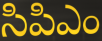
సిపిఎం